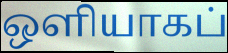
ஒளியாகப்